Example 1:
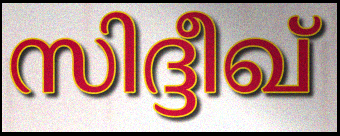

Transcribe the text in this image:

സിദ്ദീഖ്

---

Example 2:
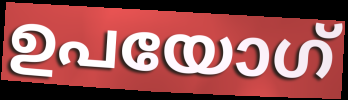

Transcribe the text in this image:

ഉപയോഗ്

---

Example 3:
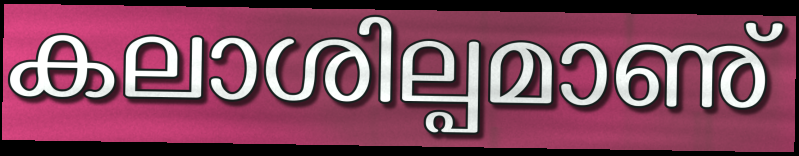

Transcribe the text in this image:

കലാശില്പമാണു്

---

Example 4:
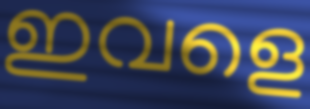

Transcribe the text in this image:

ഇവളെ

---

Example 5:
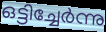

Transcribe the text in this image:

ഒട്ടിച്ചേർന്നു